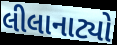
લીલાનાટ્યો